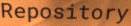
Repository